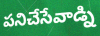
పనిచేసేవాడ్ని